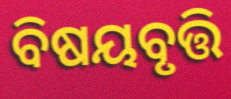
ବିଷୟବୃତ୍ତି